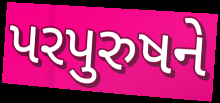
પરપુરુષને